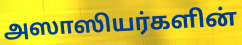
அஸாஸியர்களின்